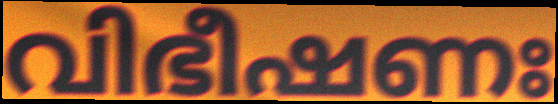
വിഭീഷണഃ